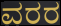
ವರರ